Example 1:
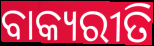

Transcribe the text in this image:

ବାକ୍ୟରୀତି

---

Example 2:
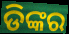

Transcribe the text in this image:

ଡିଙ୍କର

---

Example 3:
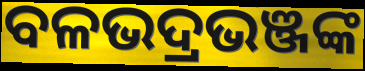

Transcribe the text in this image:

ବଳଭଦ୍ରଭଞ୍ଜଙ୍କ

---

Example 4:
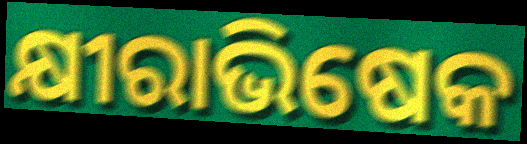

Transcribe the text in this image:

କ୍ଷୀରାଭିଷେକ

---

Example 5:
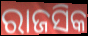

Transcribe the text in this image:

ରାଜସିକ